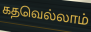
கதவெல்லாம்